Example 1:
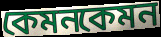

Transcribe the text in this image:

কেমনকেমন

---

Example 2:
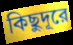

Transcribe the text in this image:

কিছুদূরে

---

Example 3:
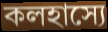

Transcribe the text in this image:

কলহাস্যে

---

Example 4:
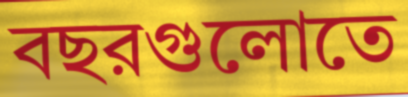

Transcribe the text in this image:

বছরগুলোতে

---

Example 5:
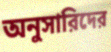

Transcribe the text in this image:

অনুসারিদের